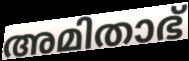
അമിതാഭ്